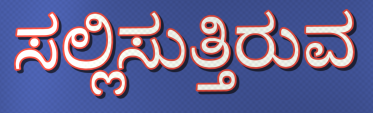
ಸಲ್ಲಿಸುತ್ತಿರುವ